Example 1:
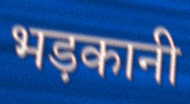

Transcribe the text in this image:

भड़कानी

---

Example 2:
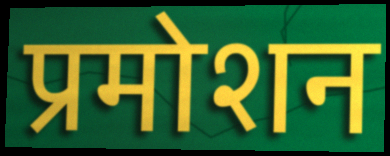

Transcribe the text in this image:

प्रमोशन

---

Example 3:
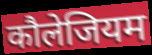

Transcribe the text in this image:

कौलेजियम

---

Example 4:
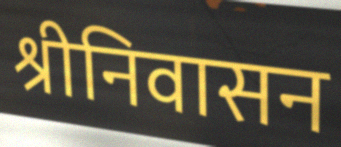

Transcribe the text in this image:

श्रीनिवासन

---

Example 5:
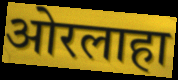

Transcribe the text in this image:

ओरलाहा